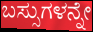
ಬಸ್ಸುಗಳನ್ನೇ